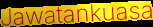
Jawatankuasa